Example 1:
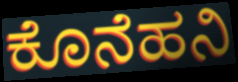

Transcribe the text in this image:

ಕೊನೆಹನಿ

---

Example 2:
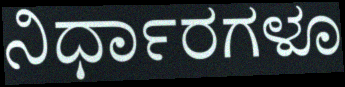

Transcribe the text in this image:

ನಿರ್ಧಾರಗಳೂ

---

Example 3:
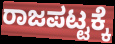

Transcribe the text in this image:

ರಾಜಪಟ್ಟಕ್ಕೆ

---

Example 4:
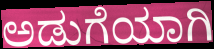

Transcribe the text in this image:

ಅಡುಗೆಯಾಗಿ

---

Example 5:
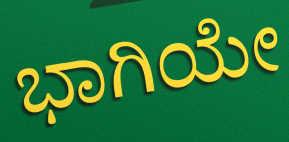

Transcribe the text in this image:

ಭಾಗಿಯೇ